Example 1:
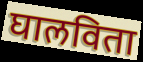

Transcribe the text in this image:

घालविता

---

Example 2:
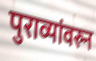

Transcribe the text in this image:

पुराव्यांवरुन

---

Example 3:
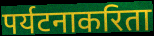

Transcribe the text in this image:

पर्यटनाकरिता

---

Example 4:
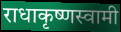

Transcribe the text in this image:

राधाकृष्णस्वामी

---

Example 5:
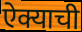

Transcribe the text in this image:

ऐक्याची